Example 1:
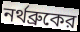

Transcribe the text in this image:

নর্থব্রুকের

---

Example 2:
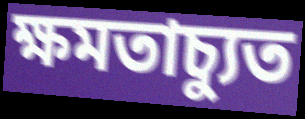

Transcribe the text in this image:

ক্ষমতাচ্যুত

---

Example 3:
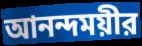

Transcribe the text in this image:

আনন্দময়ীর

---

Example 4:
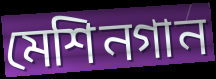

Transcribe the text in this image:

মেশিনগান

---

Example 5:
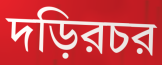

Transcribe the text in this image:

দড়িরচর